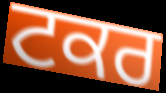
ਟਕਰ